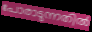
പോരാടുന്നതിൽ